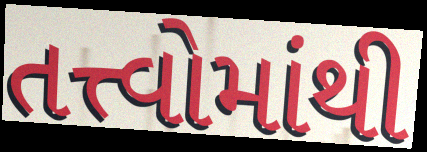
તત્ત્વોમાંથી